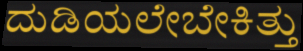
ದುಡಿಯಲೇಬೇಕಿತ್ತು